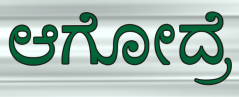
ಆಗೋದ್ರೆ